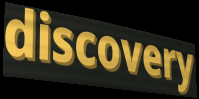
discovery